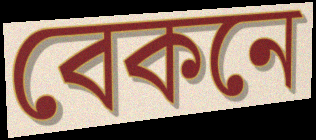
বেকনে